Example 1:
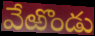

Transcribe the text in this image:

వేఱొండు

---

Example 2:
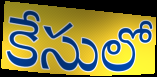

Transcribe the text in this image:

కేసులో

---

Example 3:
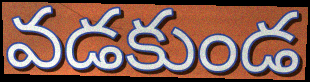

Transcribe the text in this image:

వడకుండ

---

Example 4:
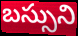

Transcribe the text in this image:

బస్సుని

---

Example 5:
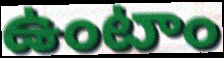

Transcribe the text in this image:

ఉంటాం